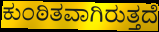
ಕುಂಠಿತವಾಗಿರುತ್ತದೆ